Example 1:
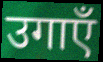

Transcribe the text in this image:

उगाएँ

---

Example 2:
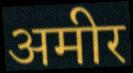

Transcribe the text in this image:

अमीर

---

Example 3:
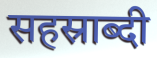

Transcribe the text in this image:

सहस्राब्दी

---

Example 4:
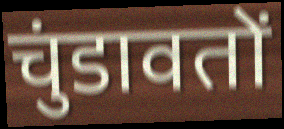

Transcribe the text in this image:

चुंडावतों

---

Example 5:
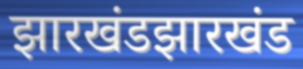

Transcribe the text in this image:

झारखंडझारखंड